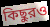
কিছুরও